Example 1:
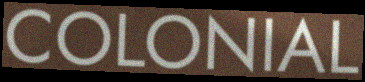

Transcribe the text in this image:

COLONIAL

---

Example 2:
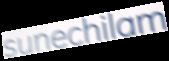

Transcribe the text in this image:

sunechilam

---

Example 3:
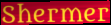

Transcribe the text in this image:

Shermer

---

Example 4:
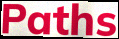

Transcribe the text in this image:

Paths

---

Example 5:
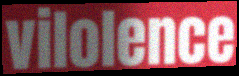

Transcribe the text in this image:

vilolence